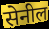
सेनील